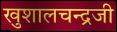
खुशालचन्द्रजी